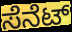
ಸೆನೆಟ್